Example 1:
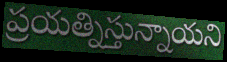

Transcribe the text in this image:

ప్రయత్నిస్తున్నాయని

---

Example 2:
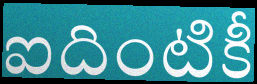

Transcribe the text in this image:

ఐదింటికీ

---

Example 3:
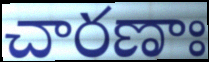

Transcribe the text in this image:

చారణాః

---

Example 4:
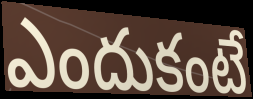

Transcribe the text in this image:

ఎందుకంటే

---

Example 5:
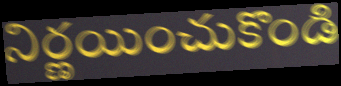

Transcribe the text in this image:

నిర్ణయించుకొండి